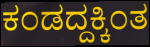
ಕಂಡದ್ದಕ್ಕಿಂತ